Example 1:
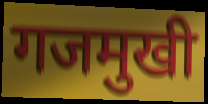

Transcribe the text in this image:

गजमुखी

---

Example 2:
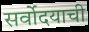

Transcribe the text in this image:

सर्वोदयाची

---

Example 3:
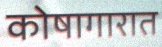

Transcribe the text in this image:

कोषागारात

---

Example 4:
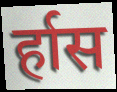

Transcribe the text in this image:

र्हास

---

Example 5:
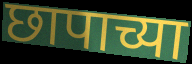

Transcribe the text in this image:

छापाच्या